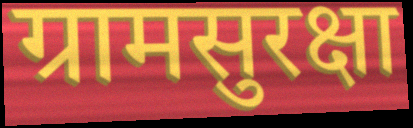
ग्रामसुरक्षा